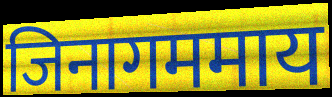
जिनागममाय